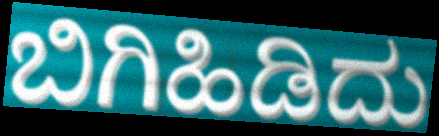
ಬಿಗಿಹಿಡಿದು